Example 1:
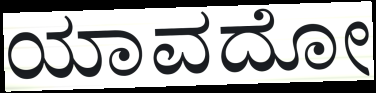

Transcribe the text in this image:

ಯಾವದೋ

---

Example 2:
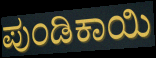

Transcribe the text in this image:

ಪುಂಡಿಕಾಯಿ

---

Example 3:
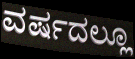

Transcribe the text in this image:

ವರ್ಷದಲ್ಲೂ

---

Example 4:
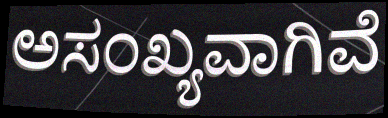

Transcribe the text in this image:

ಅಸಂಖ್ಯವಾಗಿವೆ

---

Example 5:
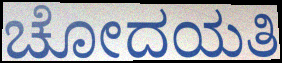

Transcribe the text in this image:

ಚೋದಯತಿ